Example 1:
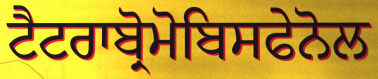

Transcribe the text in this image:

ਟੈਟਰਾਬ੍ਰੋਮੋਬਿਸਫੇਨੋਲ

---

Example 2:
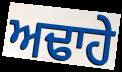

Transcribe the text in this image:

ਅਢਾਹੇ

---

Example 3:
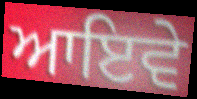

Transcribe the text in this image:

ਆਇਵੇ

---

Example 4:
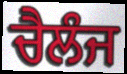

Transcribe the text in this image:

ਚੈਲੰਜ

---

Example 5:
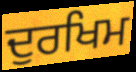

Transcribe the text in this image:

ਦੁਰਖਿਮ